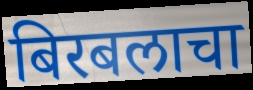
बिरबलाचा